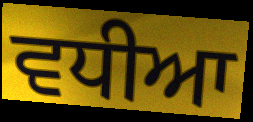
ਵਧੀਆ